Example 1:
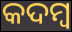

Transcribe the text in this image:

କଦମ୍ୱ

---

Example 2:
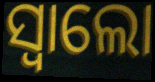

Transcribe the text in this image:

ସ୍ବାଲୋ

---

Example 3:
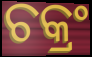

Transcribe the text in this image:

ଚକ୍ରଂ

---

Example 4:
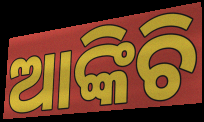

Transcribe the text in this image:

ଆଙ୍କିଚି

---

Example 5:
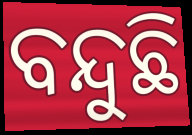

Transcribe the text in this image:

ବନ୍ଦୁଛି